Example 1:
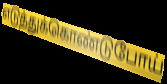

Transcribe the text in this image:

எடுத்துக்கொண்டுபோய்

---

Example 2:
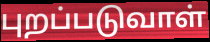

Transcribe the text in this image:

புறப்படுவாள்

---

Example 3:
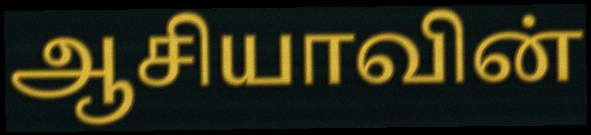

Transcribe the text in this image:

ஆசியாவின்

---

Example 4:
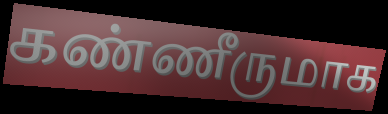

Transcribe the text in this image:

கண்ணீருமாக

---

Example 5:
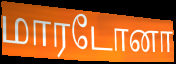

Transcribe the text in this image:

மாரடோனா